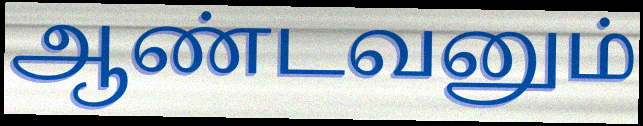
ஆண்டவனும்